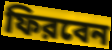
ফিরবেন